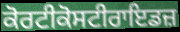
ਕੋਰਟੀਕੋਸਟੀਰਾਇਡਜ਼